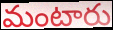
మంటారు